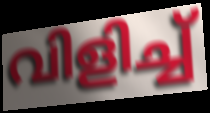
വിളിച്ച്